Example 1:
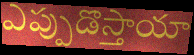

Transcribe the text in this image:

ఎప్పుడొస్తాయా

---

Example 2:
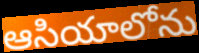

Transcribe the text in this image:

ఆసియాలోను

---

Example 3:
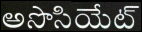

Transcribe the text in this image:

అసొసియేట్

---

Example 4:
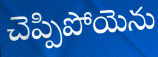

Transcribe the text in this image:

చెప్పిపోయెను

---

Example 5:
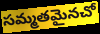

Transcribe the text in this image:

సమ్మతమైనచో